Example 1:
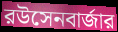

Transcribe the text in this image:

রউসেনবার্জার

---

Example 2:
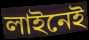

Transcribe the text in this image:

লাইনেই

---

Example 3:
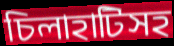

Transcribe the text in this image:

চিলাহাটিসহ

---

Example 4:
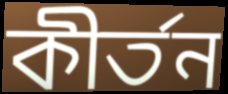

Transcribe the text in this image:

কীর্তন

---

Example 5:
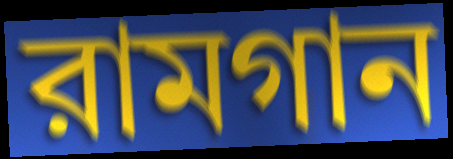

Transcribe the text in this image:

রামগান